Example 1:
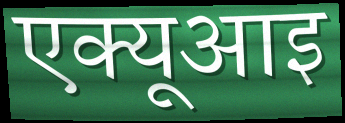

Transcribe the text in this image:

एक्यूआइ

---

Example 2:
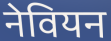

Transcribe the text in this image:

नेवियन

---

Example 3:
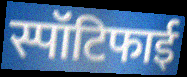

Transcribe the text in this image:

स्पॉटिफाई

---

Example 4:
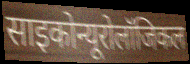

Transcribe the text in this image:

साइकोन्यूरोलॉजिकल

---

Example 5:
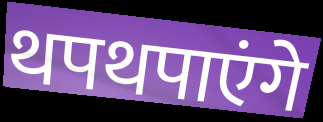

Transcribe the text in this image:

थपथपाएंगे